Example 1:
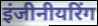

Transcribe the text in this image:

इंजीनीयरिंग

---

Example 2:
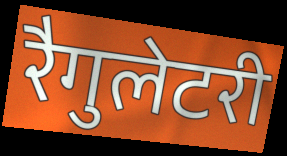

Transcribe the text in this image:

रैगुलेटरी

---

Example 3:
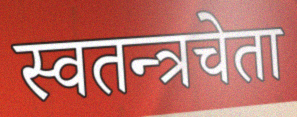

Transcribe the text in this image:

स्वतन्त्रचेता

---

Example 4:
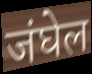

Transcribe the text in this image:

जंघेल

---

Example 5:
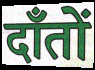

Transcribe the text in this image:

दाँतों